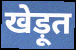
खेड़ूत